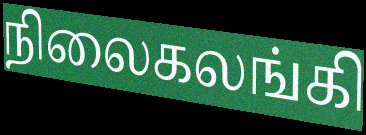
நிலைகலங்கி